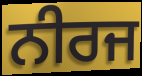
ਨੀਰਜ